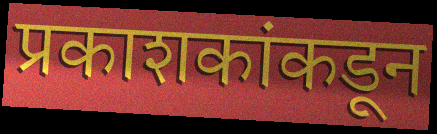
प्रकाशकांकडून